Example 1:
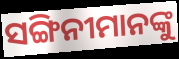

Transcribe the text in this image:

ସଙ୍ଗିନୀମାନଙ୍କୁ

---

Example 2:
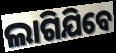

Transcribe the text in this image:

ଲାଗିଯିବେ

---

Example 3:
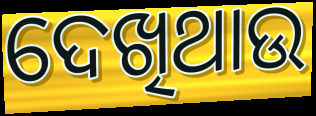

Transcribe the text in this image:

ଦେଖିଥାଉ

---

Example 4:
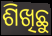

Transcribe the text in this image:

ଶିଖିଛୁ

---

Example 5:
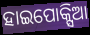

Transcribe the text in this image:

ହାଇପୋକ୍ସିଆ